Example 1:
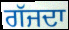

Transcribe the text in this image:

ਗੱਜਦਾ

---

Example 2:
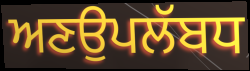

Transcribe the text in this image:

ਅਣਉਪਲੱਬਧ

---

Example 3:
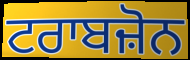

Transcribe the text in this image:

ਟਰਾਬਜ਼ੋਨ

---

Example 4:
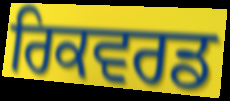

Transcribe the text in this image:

ਰਿਕਵਰਡ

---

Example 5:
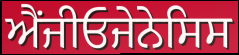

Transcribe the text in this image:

ਐਂਜੀਓਜੇਨੇਸਿਸ